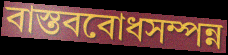
বাস্তববোধসম্পন্ন